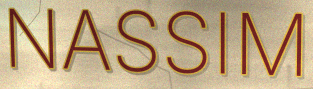
NASSIM